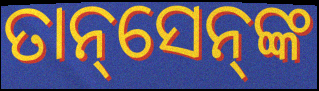
ତାନ୍‌ସେନ୍‌ଙ୍କ